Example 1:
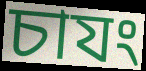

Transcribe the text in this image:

চাযং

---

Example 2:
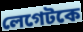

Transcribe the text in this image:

লেগেটকে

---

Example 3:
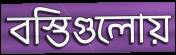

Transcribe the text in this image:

বস্তিগুলোয়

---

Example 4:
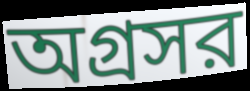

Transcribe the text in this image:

অগ্রসর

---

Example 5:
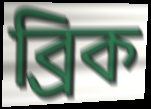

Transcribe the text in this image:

ব্রিক